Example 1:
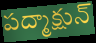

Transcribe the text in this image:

పద్మాక్షున్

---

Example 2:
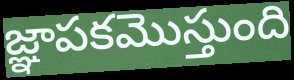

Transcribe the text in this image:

జ్ఞాపకమొస్తుంది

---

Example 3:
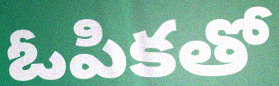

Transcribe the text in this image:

ఓపికతో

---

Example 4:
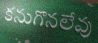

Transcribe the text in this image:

కనుగొనలేవు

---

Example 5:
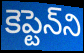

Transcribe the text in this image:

కెప్టెన్‌ని